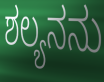
ಶಲ್ಯನನು